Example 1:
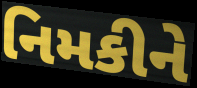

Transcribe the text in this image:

નિમકીને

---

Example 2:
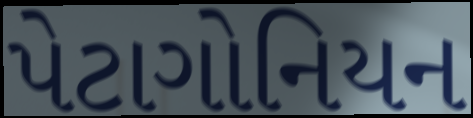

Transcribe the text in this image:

પેટાગોનિયન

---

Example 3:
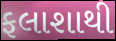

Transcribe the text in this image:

ફલાશાથી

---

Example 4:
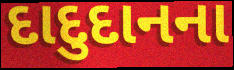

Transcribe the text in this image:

દાદુદાનના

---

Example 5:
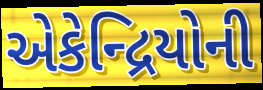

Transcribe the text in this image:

એકેન્દ્રિયોની